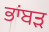
ਭਾਂਬੜ